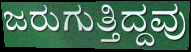
ಜರುಗುತ್ತಿದ್ದವು